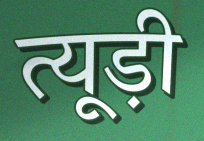
त्यूड़ी